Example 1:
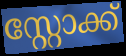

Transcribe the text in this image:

സ്റ്റോക്ക്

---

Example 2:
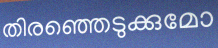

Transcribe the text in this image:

തിരഞ്ഞെടുക്കുമോ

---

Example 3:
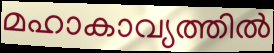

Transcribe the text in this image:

മഹാകാവ്യത്തിൽ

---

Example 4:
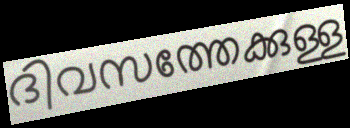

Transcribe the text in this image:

ദിവസത്തേക്കുള്ള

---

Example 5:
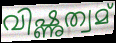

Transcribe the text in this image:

വിഷ്ണുത്വമ്